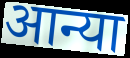
आन्या